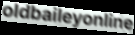
oldbaileyonline